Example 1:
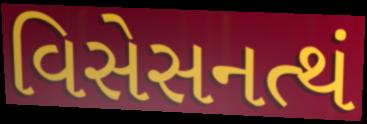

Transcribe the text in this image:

વિસેસનત્થં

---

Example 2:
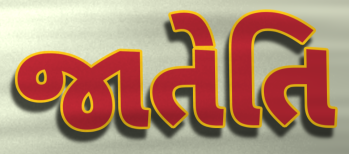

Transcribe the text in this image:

જાતેતિ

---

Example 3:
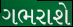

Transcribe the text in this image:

ગભરાશે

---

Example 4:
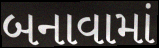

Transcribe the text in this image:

બનાવામાં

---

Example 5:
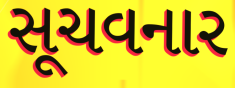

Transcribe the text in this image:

સૂચવનાર